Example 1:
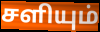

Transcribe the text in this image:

சளியும்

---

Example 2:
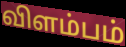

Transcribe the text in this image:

விளம்பம்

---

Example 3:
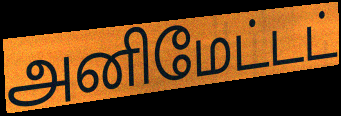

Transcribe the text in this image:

அனிமேட்டட்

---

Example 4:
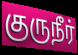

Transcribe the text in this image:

குருநீர்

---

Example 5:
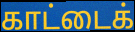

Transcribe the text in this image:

காட்டைக்